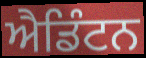
ਐਡਿੰਟਨ